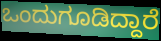
ಒಂದುಗೂಡಿದ್ದಾರೆ